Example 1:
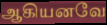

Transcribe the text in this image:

ஆகியனவே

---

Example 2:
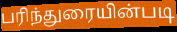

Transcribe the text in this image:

பரிந்துரையின்படி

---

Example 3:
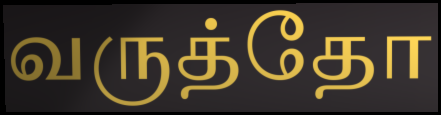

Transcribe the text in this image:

வருத்தோ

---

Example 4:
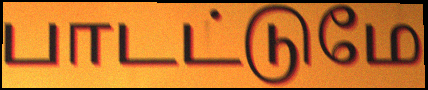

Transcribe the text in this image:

பாடட்டுமே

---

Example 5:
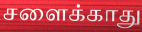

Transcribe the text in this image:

சளைக்காது